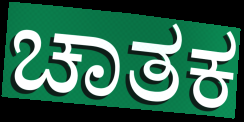
ಚಾತಕ